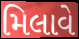
મિલાવે